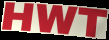
HWT